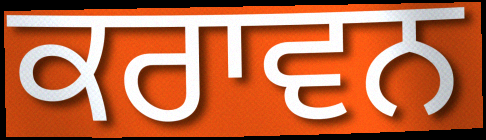
ਕਰਾਵਨ